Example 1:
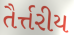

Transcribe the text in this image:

તૈર્ત્તરીય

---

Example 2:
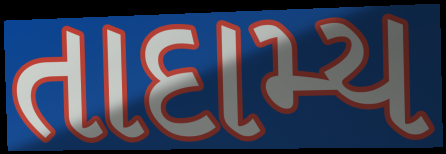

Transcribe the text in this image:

તાદામ્ય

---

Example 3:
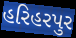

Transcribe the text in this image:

હરિહરપુર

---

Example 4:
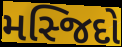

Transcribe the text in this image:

મસ્જિદો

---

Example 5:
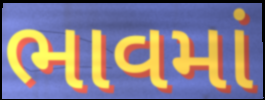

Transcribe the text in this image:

ભાવમાં